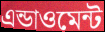
এন্ডাওমেন্ট